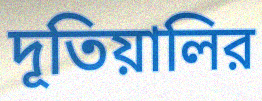
দূতিয়ালির